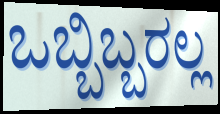
ಒಬ್ಬಿಬ್ಬರಲ್ಲ